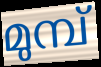
മുമ്പ്